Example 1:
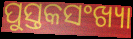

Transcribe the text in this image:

ପୁସ୍ତକସଂଖ୍ୟା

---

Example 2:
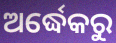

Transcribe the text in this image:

ଅର୍ଦ୍ଧେକରୁ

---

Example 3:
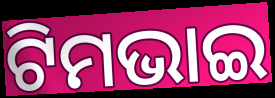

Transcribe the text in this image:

ଟିମଭାଇ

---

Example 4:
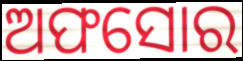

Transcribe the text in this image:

ଅଫସୋର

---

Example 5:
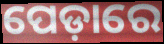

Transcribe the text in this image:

ପେଡ଼ାରେ